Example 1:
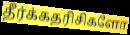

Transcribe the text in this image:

தீர்க்கதரிசிகளோ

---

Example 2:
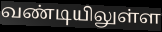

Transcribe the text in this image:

வண்டியிலுள்ள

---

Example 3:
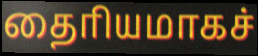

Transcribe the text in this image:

தைரியமாகச்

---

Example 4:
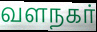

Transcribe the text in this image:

வளநகர்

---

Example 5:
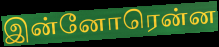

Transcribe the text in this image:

இன்னோரென்ன